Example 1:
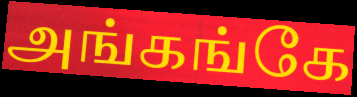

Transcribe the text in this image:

அங்கங்கே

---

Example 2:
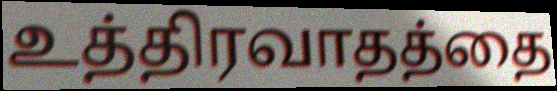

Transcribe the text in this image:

உத்திரவாதத்தை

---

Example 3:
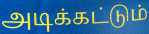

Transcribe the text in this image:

அடிக்கட்டும்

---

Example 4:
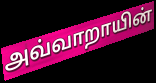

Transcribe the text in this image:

அவ்வாறாயின்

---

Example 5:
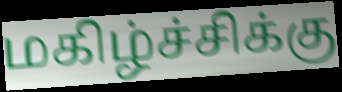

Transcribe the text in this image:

மகிழ்ச்சிக்கு